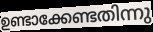
ഉണ്ടാക്കേണ്ടതിന്നു